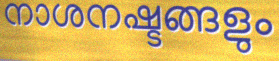
നാശനഷ്ടങ്ങളും